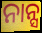
ନାନ୍ସ